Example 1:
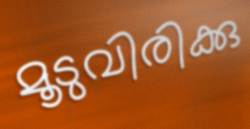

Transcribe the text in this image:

മൂടുവിരിക്കു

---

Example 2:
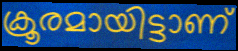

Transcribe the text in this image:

ക്രൂരമായിട്ടാണ്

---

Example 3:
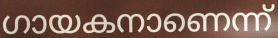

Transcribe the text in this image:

ഗായകനാണെന്ന്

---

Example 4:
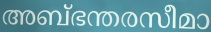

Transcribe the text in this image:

അബ്ഭന്തരസീമാ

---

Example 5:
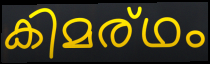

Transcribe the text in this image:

കിമര്ഥം